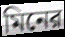
মিনের